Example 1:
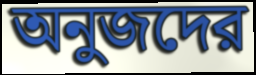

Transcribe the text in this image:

অনুজদের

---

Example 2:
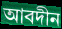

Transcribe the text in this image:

আবদীন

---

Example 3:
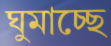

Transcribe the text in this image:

ঘুমাচ্ছে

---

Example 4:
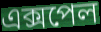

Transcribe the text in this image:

এক্সপেল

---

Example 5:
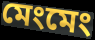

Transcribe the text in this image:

মেংমেং